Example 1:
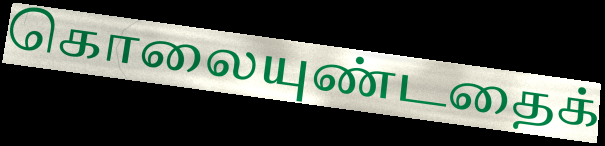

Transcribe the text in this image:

கொலையுண்டதைக்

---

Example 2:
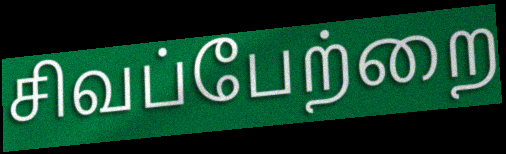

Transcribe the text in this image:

சிவப்பேற்றை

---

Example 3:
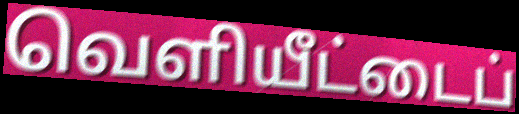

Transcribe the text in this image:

வெளியீட்டைப்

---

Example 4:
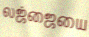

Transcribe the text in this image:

லஜ்ஜையை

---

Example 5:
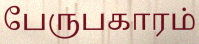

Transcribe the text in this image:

பேருபகாரம்